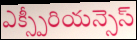
ఎక్స్పీరియన్సెస్